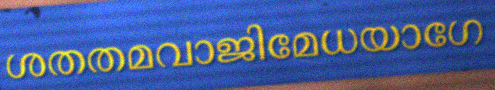
ശതതമവാജിമേധയാഗേ